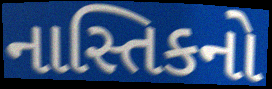
નાસ્તિકનો